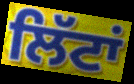
ਲਿੱਟਾਂ